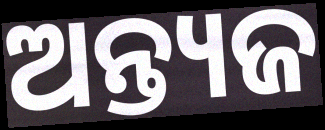
ଅନ୍ତ୍ୟଜ